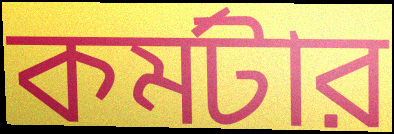
কর্মটার